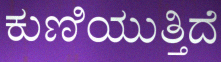
ಕುಣಿಯುತ್ತಿದೆ